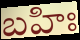
బహిః